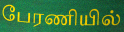
பேரணியில்